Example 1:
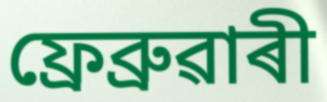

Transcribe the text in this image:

ফ্ৰেব্ৰুৱাৰী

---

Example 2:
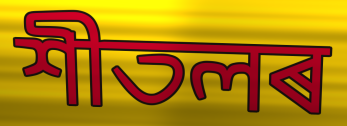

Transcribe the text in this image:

শীতলৰ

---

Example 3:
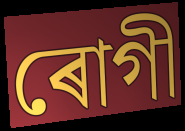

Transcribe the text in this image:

ৰোগী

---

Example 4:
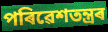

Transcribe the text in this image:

পৰিৱেশতন্ত্ৰৰ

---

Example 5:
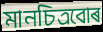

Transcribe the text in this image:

মানচিত্ৰবোৰ